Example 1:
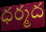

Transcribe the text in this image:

ధర్మద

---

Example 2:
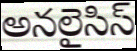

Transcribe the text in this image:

అనలైసిస్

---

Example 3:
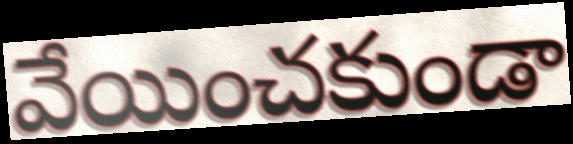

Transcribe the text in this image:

వేయించకుండా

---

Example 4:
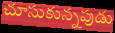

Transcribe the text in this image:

చూసుకున్నపుడు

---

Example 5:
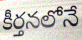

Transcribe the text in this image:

కీర్తనలోనే